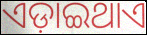
ଏଡ଼ାଇଥାଏ